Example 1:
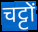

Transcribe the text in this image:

चट्टों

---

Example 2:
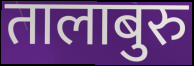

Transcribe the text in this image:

तालाबुरु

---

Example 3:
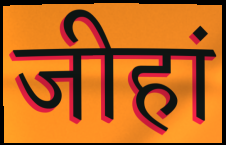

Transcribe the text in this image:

जीहां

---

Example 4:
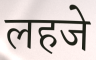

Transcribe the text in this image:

लहजे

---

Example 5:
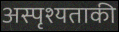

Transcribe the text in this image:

अस्पृश्यताकी